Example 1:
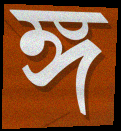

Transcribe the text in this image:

ঙ্গ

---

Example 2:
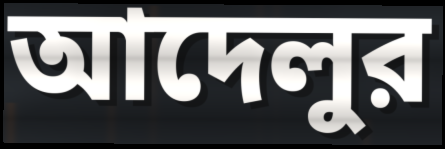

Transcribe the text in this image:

আদেলুর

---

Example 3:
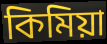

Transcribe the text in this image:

কিমিয়া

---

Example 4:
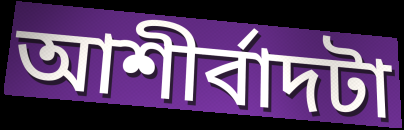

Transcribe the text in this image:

আশীর্বাদটা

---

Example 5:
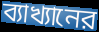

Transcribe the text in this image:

ব্যাখ্যানের